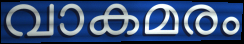
വാകമരം